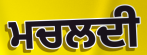
ਮਚਲਦੀ